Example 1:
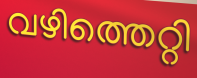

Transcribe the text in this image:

വഴിത്തെറ്റി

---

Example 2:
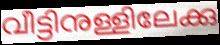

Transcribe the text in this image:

വീട്ടിനുള്ളിലേക്കു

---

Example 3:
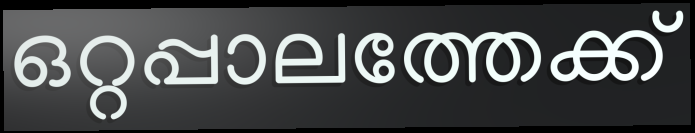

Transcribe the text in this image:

ഒറ്റപ്പാലത്തേക്ക്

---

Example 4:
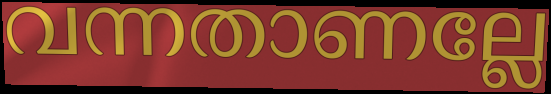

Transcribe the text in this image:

വന്നതാണല്ലേ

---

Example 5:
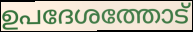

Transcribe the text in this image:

ഉപദേശത്തോട്